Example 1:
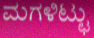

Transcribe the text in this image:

ಮಗಳಿಟ್ಟು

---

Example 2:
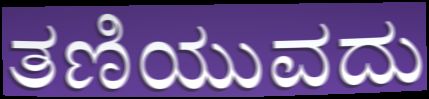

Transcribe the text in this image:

ತಣಿಯುವದು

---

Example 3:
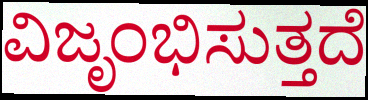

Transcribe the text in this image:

ವಿಜೃಂಭಿಸುತ್ತದೆ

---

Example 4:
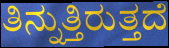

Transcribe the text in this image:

ತಿನ್ನುತ್ತಿರುತ್ತದೆ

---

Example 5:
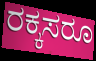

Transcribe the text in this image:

ರಕ್ಕಸರೂ